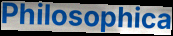
Philosophica